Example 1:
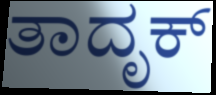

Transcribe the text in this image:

ತಾದೃಕ್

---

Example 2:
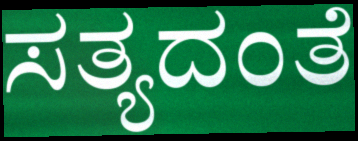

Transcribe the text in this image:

ಸತ್ಯದಂತೆ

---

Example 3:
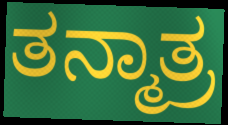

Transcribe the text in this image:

ತನ್ಮಾತ್ರ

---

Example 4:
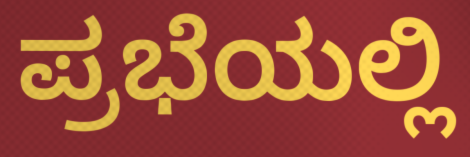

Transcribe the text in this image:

ಪ್ರಭೆಯಲ್ಲಿ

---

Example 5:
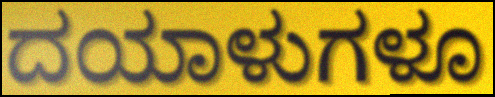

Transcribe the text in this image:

ದಯಾಳುಗಳೂ